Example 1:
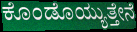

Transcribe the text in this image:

ಕೊಂಡೊಯ್ಯುತ್ತೇನೆ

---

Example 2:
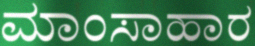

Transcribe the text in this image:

ಮಾಂಸಾಹಾರ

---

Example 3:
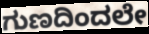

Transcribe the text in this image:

ಗುಣದಿಂದಲೇ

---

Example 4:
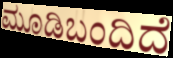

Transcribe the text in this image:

ಮೂಡಿಬಂದಿದೆ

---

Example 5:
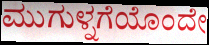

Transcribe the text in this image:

ಮುಗುಳ್ನಗೆಯೊಂದೇ